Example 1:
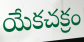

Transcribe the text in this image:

యేకచక్రం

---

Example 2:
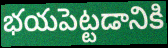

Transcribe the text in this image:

భయపెట్టడానికి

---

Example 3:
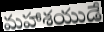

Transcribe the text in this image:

మహాశయుడే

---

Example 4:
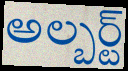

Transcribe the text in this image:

అల్బర్ట్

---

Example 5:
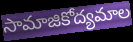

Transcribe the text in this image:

సామాజికోద్యమాల